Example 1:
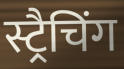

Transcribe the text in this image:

स्ट्रैचिंग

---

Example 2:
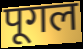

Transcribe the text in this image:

पूगल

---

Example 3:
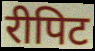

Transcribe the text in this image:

रीपिट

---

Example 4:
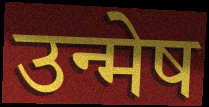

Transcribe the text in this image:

उन्मेष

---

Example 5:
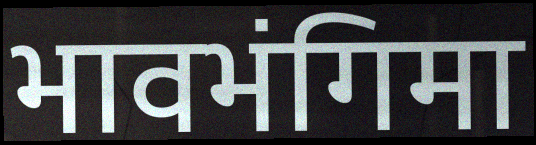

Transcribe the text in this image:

भावभंगिमा